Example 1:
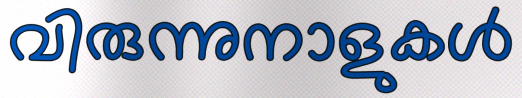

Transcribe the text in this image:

വിരുന്നുനാളുകൾ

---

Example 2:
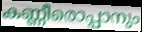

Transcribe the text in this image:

കണ്ണീരൊപ്പാനും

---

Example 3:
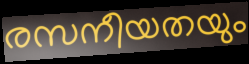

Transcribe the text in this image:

രസനീയതയും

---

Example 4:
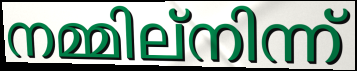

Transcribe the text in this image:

നമ്മില്നിന്ന്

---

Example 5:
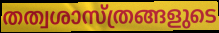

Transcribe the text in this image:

തത്വശാസ്ത്രങ്ങളുടെ